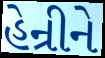
હેન્રીને